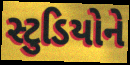
સ્ટુડિયોને